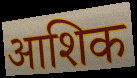
आशिक